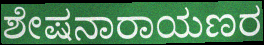
ಶೇಷನಾರಾಯಣರ